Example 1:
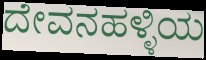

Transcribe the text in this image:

ದೇವನಹಳ್ಳಿಯ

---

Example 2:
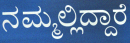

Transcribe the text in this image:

ನಮ್ಮಲ್ಲಿದ್ದಾರೆ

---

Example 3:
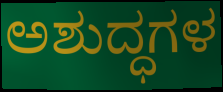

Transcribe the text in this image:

ಅಶುದ್ಧಗಳ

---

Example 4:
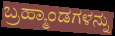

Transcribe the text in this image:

ಬ್ರಹ್ಮಾಂಡಗಳನ್ನು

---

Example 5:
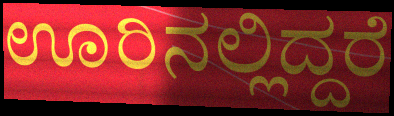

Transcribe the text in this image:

ಊರಿನಲ್ಲಿದ್ದರೆ